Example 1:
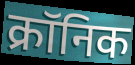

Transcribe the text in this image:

क्रॉनिक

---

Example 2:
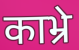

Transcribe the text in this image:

काभ्रे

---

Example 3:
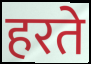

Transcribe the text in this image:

हरते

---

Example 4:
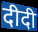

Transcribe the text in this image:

दीदी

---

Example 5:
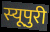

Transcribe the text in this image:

स्यूपुरी